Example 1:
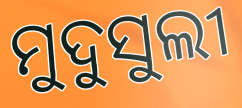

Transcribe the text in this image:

ମୁଦୁସୁଲୀ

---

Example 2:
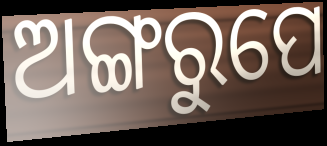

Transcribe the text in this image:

ଅଙ୍ଗରୁପେ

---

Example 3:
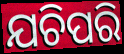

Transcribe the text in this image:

ଯଚିପରି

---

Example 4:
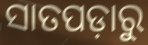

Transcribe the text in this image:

ସାତପଡ଼ାରୁ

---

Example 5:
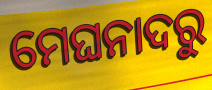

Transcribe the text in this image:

ମେଘନାଦରୁ